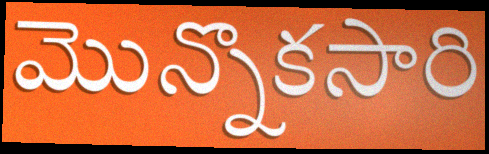
మొన్నొకసారి